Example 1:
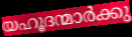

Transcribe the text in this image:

യഹൂദന്മാർക്കു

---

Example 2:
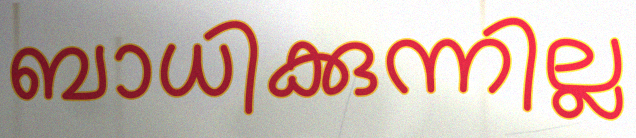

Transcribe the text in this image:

ബാധിക്കുന്നില്ല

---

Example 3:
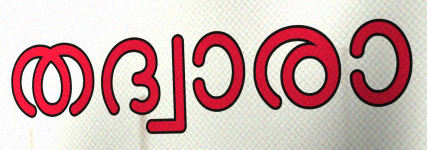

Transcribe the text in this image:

തദ്വാരാ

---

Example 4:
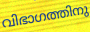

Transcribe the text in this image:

വിഭാഗത്തിനു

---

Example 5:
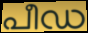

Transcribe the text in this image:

പീഡ